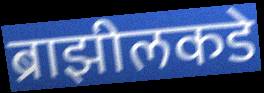
ब्राझीलकडे